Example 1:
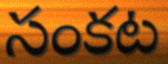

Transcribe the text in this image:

సంకట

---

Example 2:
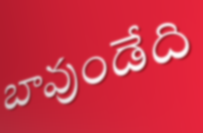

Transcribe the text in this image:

బావుండేది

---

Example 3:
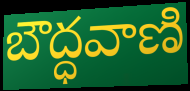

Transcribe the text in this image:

బౌద్ధవాణి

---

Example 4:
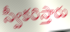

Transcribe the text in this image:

స్వీకరిస్తారు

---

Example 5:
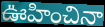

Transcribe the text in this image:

ఊహించినా